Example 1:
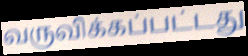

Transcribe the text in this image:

வருவிக்கப்பட்டது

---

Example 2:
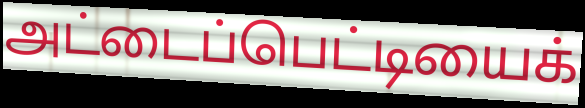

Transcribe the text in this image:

அட்டைப்பெட்டியைக்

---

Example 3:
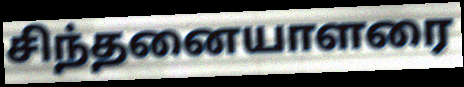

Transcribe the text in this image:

சிந்தனையாளரை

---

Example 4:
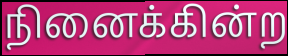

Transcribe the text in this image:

நினைக்கின்ற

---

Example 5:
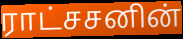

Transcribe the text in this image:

ராட்சசனின்